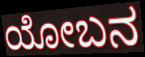
ಯೋಬನ